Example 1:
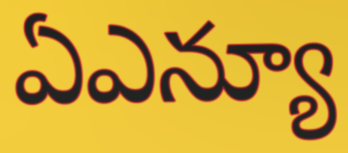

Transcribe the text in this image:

ఏఎన్యూ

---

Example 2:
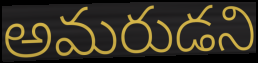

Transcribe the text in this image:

అమరుడని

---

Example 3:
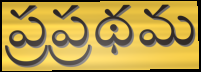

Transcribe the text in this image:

ప్రప్రథమ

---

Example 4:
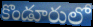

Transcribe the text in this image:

కొండూరులో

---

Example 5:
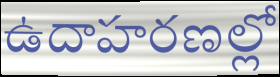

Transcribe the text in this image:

ఉదాహరణల్లో